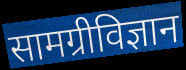
सामग्रीविज्ञान